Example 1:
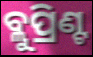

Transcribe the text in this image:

ବ୍ଲୁପ୍ରିଣ୍ଟ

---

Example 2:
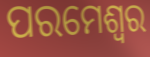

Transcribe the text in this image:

ପରମେଶ୍ୱର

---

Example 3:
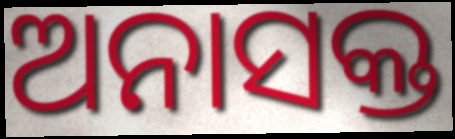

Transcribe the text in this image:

ଅନାସକ୍ତ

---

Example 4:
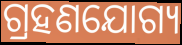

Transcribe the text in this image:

ଗ୍ରହଣଯୋଗ୍ୟ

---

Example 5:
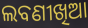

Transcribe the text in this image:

ଲବଣୀଖିଆ